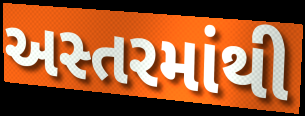
અસ્તરમાંથી